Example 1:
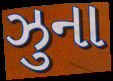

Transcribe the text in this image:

ઝુના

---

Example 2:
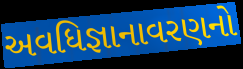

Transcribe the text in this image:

અવધિજ્ઞાનાવરણનો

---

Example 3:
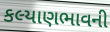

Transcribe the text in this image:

કલ્યાણભાવની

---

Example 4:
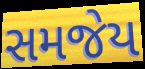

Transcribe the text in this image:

સમજેય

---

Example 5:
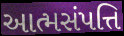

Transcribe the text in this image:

આત્મસંપત્તિ